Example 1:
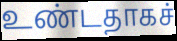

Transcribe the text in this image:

உண்டதாகச்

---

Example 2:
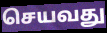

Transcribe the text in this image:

செயவது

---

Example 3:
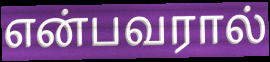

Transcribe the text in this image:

என்பவரால்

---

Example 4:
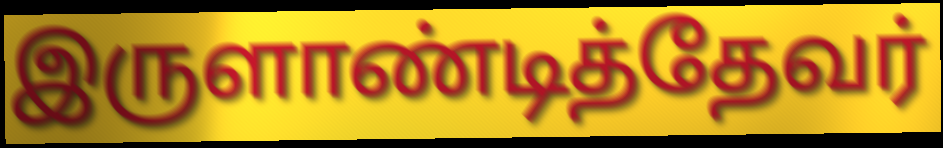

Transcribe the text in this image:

இருளாண்டித்தேவர்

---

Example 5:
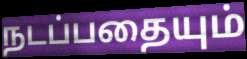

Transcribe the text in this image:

நடப்பதையும்